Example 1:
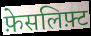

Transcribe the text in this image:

फ़ेसलिफ़्ट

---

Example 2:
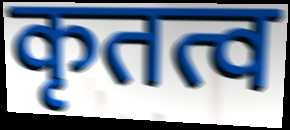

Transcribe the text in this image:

कृतत्व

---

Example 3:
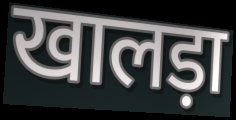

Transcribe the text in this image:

खालड़ा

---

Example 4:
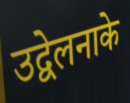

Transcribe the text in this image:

उद्वेलनाके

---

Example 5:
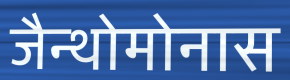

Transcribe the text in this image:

जैन्थोमोनास